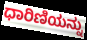
ಧಾರಿಣಿಯನ್ನು